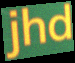
jhd